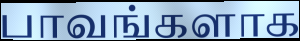
பாவங்களாக